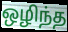
ஒழிந்த